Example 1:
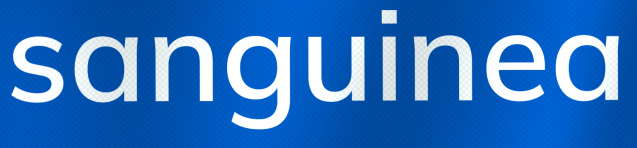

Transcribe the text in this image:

sanguinea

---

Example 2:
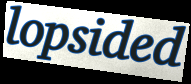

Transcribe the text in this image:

lopsided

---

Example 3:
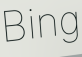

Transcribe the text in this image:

Bing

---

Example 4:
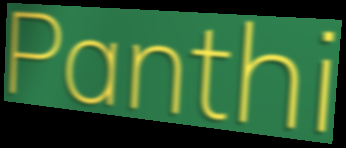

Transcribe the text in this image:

Panthi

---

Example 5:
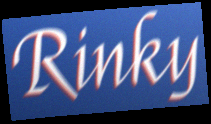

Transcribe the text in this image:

Rinky